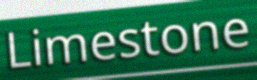
Limestone